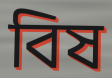
বিষ